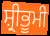
ਸ਼੍ਰੀਭੂਮੀ